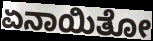
ಏನಾಯಿತೋ